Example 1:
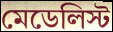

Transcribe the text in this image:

মেডেলিস্ট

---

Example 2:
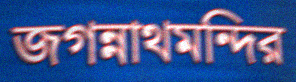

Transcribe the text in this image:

জগন্নাথমন্দির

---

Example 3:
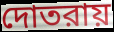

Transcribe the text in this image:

দোতরায়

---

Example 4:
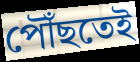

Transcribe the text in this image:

পৌঁছতেই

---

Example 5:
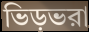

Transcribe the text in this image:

ভিড়ভরা